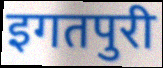
इगतपुरी